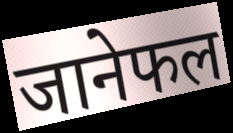
जानेफल